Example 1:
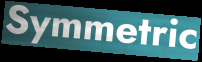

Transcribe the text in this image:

Symmetric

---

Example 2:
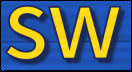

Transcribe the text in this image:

sw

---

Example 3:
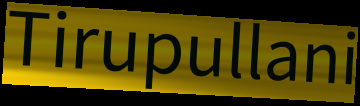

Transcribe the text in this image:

Tirupullani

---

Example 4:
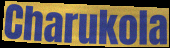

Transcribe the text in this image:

Charukola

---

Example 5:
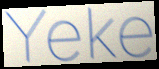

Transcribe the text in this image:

Yeke